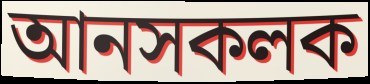
আনসকলক